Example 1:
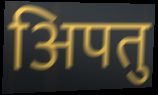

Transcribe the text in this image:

अिपतु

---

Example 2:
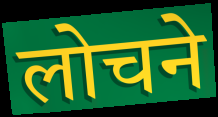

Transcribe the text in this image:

लोचने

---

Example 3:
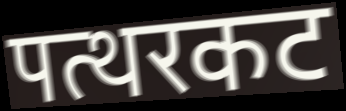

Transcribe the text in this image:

पत्थरकट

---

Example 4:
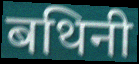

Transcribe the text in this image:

बथिनी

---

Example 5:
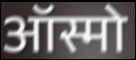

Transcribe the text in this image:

ऑस्मो